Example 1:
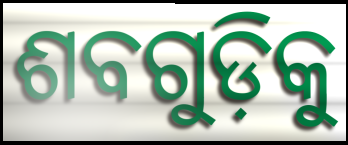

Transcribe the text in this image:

ଶବଗୁଡ଼ିକୁ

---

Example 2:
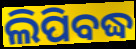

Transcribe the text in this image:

ଲିପିବଦ୍ଧ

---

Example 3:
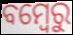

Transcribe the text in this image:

ବମ୍ବେରୁ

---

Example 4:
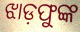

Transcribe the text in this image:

ଝାଡ଼ଫୁଙ୍କ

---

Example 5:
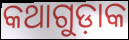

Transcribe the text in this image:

କଥାଗୁଡ଼ାକ